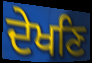
ਦੇਖਣਿ